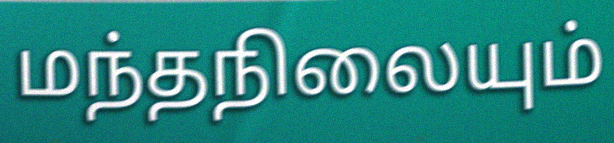
மந்தநிலையும்